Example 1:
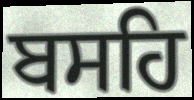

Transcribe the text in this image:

ਬਸਹਿ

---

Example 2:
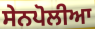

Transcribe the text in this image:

ਸੇਨਪੋਲੀਆ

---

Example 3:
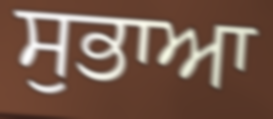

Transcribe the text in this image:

ਸੁਭਾਆ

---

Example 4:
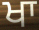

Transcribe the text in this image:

ਖਾ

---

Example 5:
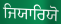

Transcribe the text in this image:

ਜਿਯਾਰਿਯੋ